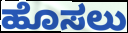
ಹೊಸಲು